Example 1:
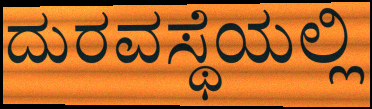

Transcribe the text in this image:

ದುರವಸ್ಥೆಯಲ್ಲಿ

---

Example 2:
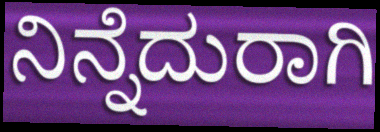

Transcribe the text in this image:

ನಿನ್ನೆದುರಾಗಿ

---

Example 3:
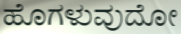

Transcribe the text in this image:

ಹೊಗಳುವುದೋ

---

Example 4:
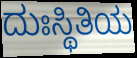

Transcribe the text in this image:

ದುಃಸ್ಥಿತಿಯ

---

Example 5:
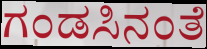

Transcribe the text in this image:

ಗಂಡಸಿನಂತೆ